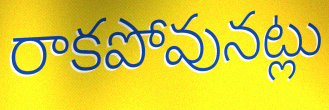
రాకపోవునట్లు